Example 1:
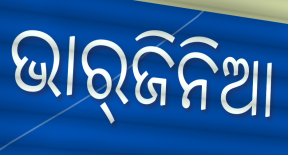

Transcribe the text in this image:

ଭାର୍‌ଜିନିଆ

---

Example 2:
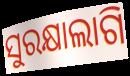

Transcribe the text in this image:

ସୁରକ୍ଷାଲାଗି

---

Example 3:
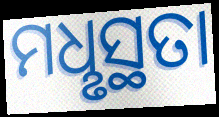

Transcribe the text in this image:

ମଧୢସ୍ଥତା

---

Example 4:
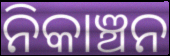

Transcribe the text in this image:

ନିକାଞ୍ଚନ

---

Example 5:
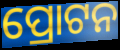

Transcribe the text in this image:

ପ୍ରୋଟନ